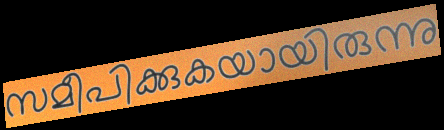
സമീപിക്കുകയായിരുന്നു